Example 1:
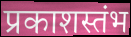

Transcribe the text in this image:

प्रकाशस्तंभ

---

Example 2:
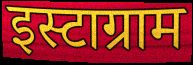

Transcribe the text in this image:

इस्टाग्राम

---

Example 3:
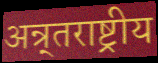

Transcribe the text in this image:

अन्र्तराष्ट्रीय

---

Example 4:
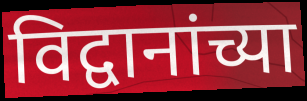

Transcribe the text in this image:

विद्वानांच्या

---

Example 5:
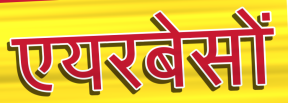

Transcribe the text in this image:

एयरबेसों